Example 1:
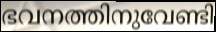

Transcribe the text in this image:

ഭവനത്തിനുവേണ്ടി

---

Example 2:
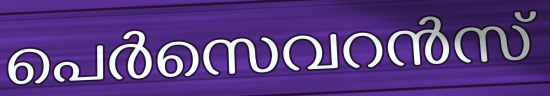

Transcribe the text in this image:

പെർസെവറൻസ്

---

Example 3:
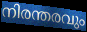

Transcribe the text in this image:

നിരന്തരവും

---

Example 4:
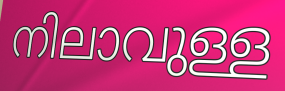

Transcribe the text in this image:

നിലാവുള്ള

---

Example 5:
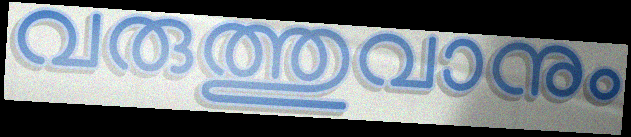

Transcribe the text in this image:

വരുത്തുവാനും